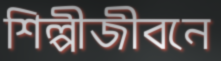
শিল্পীজীবনে